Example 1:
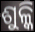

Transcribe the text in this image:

ଶୁଳ୍କି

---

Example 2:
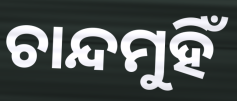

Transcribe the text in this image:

ଚାନ୍ଦମୁହିଁ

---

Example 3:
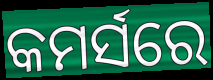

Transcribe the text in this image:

କମର୍ସରେ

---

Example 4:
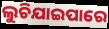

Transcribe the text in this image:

ଲୁଚିଯାଇପାରେ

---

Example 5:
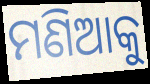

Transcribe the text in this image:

ମଣିଆକୁ